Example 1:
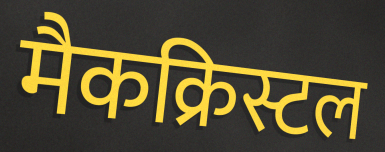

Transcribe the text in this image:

मैकक्रिस्टल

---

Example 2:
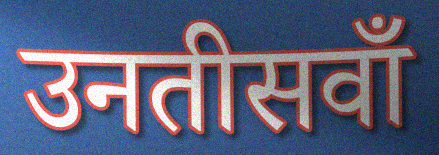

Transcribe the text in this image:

उनतीसवाँ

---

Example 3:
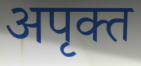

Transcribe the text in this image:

अपृक्त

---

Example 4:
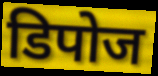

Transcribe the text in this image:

डिपोज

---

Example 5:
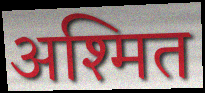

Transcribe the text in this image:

अश्मित